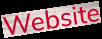
Website